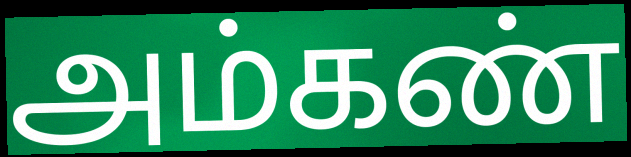
அம்கண்